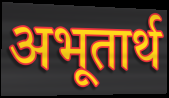
अभूतार्थ